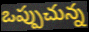
ఒప్పుచున్న